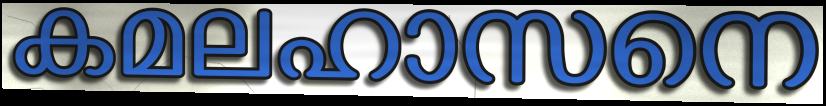
കമലഹാസനെ